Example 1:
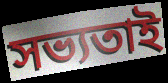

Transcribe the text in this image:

সভ্যতাই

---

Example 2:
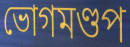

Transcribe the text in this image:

ভোগমণ্ডপ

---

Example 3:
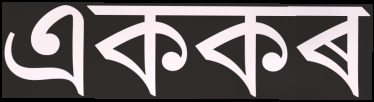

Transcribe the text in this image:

এককৰ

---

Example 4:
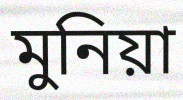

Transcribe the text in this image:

মুনিয়া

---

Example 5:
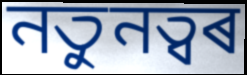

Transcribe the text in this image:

নতুনত্বৰ